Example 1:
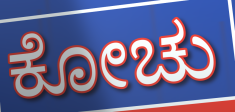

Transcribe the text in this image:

ಕೋಚು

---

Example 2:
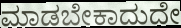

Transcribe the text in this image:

ಮಾಡಬೇಕಾದುದೇ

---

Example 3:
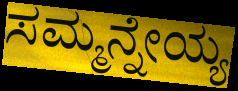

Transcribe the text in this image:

ಸಮ್ಮನ್ನೇಯ್ಯ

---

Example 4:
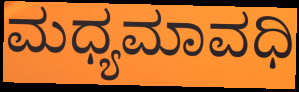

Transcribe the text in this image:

ಮಧ್ಯಮಾವಧಿ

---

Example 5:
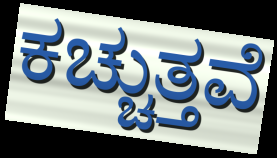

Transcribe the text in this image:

ಕಚ್ಚುತ್ತವೆ